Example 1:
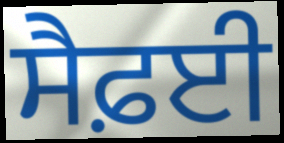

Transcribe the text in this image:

ਸੈਫ਼ਈ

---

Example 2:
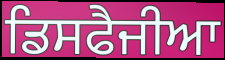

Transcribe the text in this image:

ਡਿਸਫੈਜੀਆ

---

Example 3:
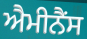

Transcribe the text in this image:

ਐਮੀਨੈਂਸ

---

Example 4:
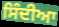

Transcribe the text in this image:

ਸਿੰਦੀਆ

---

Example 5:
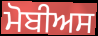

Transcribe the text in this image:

ਮੋਬੀਅਸ